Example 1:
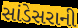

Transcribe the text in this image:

સાંડેસરાની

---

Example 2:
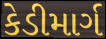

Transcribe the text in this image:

કેડીમાર્ગ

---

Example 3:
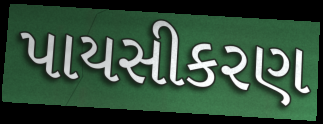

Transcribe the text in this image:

પાયસીકરણ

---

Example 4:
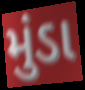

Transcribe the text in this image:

મુંડા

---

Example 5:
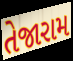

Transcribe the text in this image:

તેજારામ